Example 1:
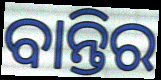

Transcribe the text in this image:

ବାନ୍ତିର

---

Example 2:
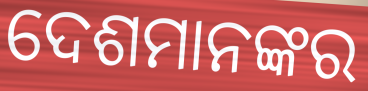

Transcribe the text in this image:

ଦେଶମାନଙ୍କର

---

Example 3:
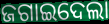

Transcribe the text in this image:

ଜଗାଇଦେଲା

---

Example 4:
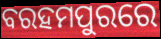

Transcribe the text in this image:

ବରହମପୁରରେ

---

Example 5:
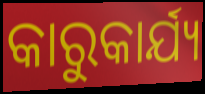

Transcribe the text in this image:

କାରୁକାର୍ଯ୍ୟ